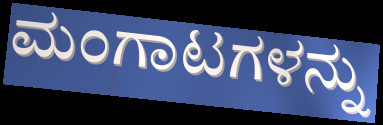
ಮಂಗಾಟಗಳನ್ನು